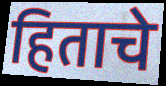
हिताचे